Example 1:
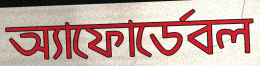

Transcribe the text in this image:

অ্যাফোর্ডেবল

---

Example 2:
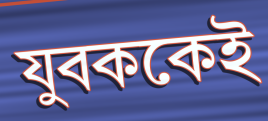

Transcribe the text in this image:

যুবককেই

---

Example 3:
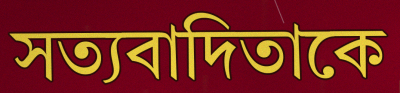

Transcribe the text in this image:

সত্যবাদিতাকে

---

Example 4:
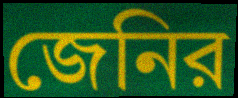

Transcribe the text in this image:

জেনির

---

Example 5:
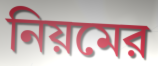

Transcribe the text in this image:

নিয়মের